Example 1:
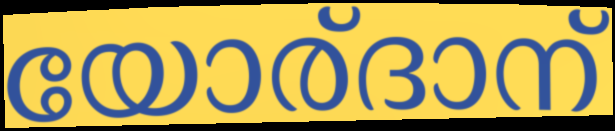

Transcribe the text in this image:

യോര്ദാന്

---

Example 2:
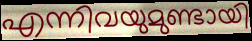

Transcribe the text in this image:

എന്നിവയുമുണ്ടായി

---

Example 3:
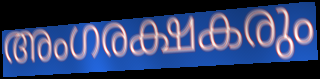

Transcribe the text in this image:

അംഗരക്ഷകരും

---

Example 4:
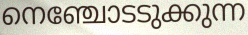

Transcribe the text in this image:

നെഞ്ചോടടുക്കുന്ന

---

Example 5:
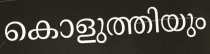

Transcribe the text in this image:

കൊളുത്തിയും